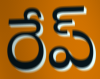
రేప్